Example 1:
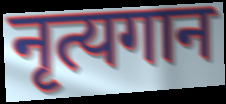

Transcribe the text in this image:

नृत्यगान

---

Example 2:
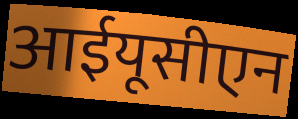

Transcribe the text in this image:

आईयूसीएन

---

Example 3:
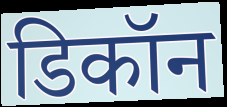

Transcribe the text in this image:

डिकॉन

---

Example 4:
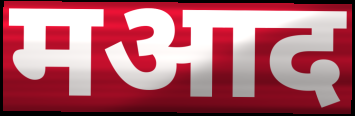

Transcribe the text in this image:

मआद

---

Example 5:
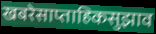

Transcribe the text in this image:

खबरेसाप्ताहिकसुझाव